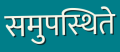
समुपस्थिते